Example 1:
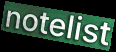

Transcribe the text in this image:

notelist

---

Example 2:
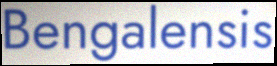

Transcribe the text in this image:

Bengalensis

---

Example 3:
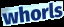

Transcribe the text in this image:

whorls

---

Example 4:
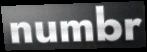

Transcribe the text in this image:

numbr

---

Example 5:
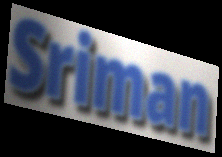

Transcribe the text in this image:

Sriman